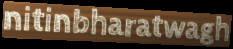
nitinbharatwagh